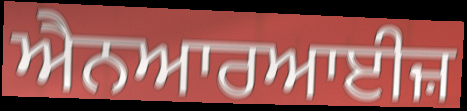
ਐਨਆਰਆਈਜ਼